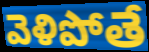
వెళిపోతే